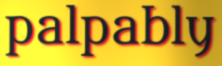
palpably